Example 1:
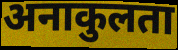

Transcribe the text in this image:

अनाकुलता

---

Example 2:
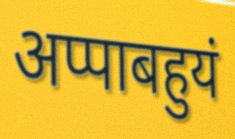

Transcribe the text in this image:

अप्पाबहुयं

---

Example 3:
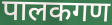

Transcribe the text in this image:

पालकगण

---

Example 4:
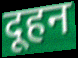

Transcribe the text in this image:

दूहन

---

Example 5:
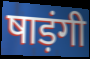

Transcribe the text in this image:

षाड़ंगी